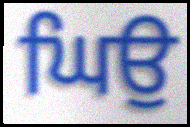
ਘਿਉ